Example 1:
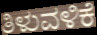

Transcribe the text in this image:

ತಿಳುವಳಿಕೆ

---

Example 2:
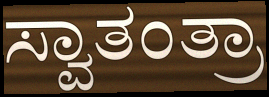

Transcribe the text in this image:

ಸ್ವಾತಂತ್ರಾ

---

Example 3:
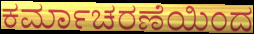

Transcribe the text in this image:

ಕರ್ಮಾಚರಣೆಯಿಂದ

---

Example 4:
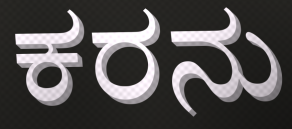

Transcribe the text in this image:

ಕರನು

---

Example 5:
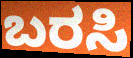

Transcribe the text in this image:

ಬರಸಿ